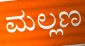
ಮಲ್ಲಣ